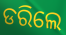
ଡରିଲେ